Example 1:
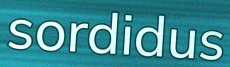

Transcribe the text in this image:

sordidus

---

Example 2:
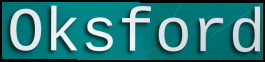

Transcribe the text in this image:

Oksford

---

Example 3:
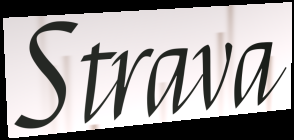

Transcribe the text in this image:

Strava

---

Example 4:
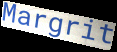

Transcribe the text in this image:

Margrit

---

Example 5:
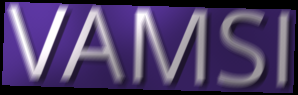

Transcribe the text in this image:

VAMSI